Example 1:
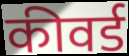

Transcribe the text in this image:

कीवर्ड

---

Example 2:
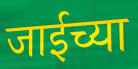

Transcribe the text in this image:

जाईच्या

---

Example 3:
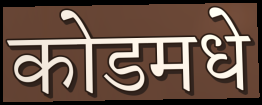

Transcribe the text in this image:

कोडमधे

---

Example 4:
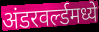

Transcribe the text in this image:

अंडरवर्ल्डमध्ये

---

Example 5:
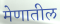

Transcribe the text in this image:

मेणातील